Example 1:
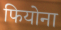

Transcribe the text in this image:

फियोना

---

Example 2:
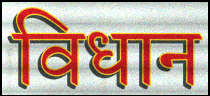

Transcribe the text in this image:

विधान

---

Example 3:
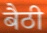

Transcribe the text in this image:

बैठी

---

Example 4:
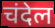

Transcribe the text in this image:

चंदेल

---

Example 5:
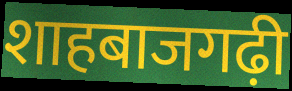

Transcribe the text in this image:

शाहबाजगढ़ी